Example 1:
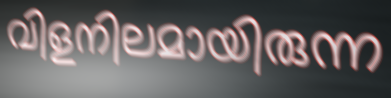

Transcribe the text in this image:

വിളനിലമായിരുന്ന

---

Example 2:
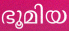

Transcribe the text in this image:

ഭൂമിയ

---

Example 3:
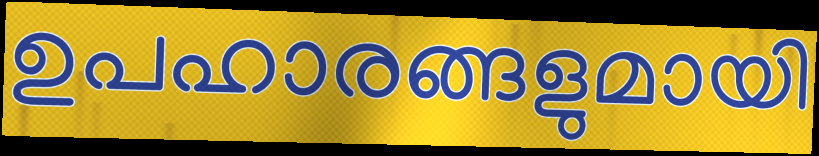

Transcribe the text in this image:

ഉപഹാരങ്ങളുമായി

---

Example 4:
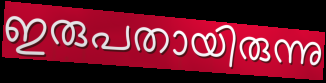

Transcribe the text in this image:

ഇരുപതായിരുന്നു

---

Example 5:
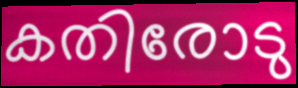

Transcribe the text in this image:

കതിരോടു